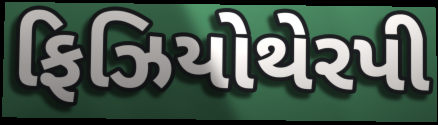
ફિઝિયોથેરપી